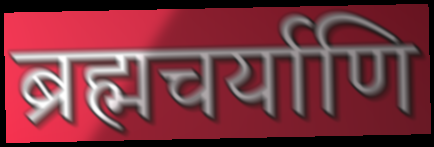
ब्रह्मचर्याणि